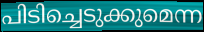
പിടിച്ചെടുക്കുമെന്ന